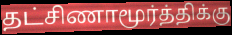
தட்சிணாமூர்த்திக்கு